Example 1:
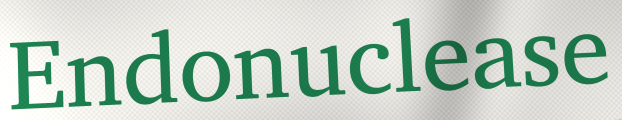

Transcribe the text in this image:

Endonuclease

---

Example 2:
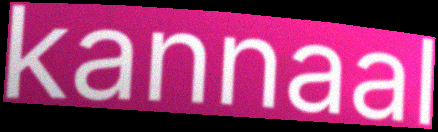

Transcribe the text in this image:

kannaal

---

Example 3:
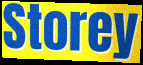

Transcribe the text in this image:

Storey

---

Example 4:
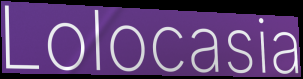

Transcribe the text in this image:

Lolocasia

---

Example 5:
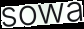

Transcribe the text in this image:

sowa